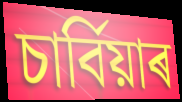
চাৰ্বিয়াৰ